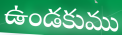
ఉండకుము